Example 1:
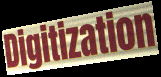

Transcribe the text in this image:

Digitization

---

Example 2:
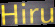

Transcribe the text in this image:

Hiru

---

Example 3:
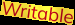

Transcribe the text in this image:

Writable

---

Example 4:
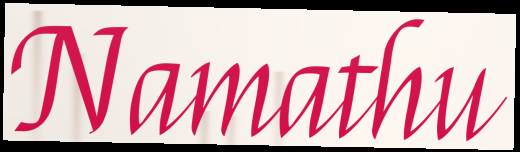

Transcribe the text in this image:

Namathu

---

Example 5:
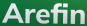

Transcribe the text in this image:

Arefin